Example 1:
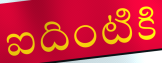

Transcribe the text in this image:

ఐదింటికి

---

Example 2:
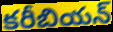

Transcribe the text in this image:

కరీబియన్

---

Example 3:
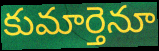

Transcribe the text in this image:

కుమార్తెనూ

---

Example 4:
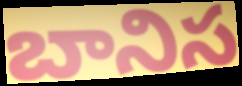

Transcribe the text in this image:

బానిస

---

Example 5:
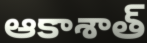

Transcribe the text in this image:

ఆకాశాత్